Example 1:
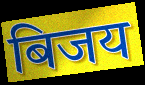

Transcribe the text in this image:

बिजय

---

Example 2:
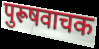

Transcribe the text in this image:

पुरूषवाचक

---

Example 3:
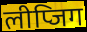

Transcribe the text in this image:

लीप्जिग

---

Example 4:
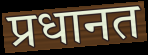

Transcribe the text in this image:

प्रधानत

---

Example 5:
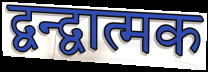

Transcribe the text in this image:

द्वन्द्वात्मक